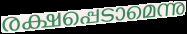
രക്ഷപ്പെടാമെന്നു